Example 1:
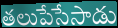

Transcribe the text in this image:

తలుపేసేసాడు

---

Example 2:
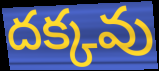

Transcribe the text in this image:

దక్కవు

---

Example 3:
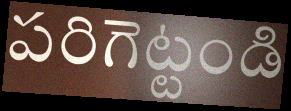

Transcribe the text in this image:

పరిగెట్టండి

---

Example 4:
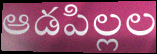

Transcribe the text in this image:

ఆడపిల్లల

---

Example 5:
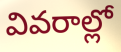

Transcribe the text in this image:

వివరాల్లో